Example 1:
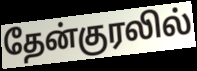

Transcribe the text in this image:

தேன்குரலில்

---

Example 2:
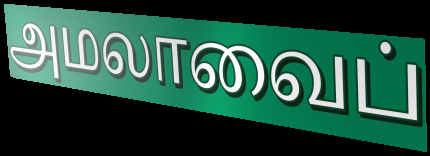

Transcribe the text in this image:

அமலாவைப்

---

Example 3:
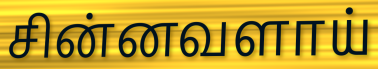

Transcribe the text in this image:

சின்னவளாய்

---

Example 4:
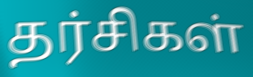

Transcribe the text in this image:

தர்சிகள்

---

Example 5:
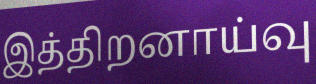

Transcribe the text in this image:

இத்திறனாய்வு